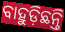
ବାହୁଡ଼ିଛନ୍ତି